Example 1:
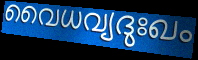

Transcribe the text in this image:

വൈധവ്യദുഃഖം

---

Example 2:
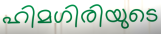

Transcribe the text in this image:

ഹിമഗിരിയുടെ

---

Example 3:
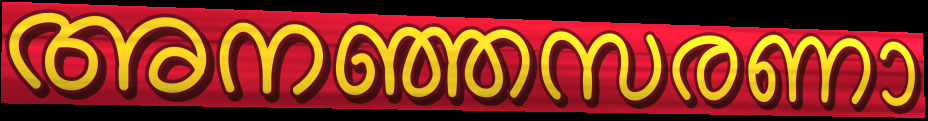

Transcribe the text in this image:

അനഞ്ഞസരണാ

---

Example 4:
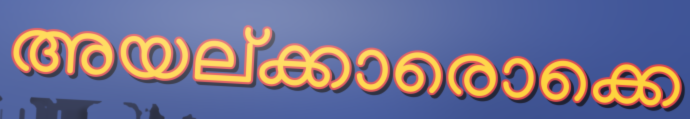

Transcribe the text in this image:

അയല്ക്കാരൊക്കെ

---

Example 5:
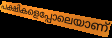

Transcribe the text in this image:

പക്ഷികളെപ്പോലെയാണ്